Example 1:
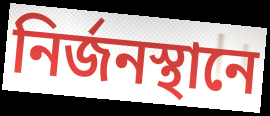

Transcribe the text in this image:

নির্জনস্থানে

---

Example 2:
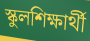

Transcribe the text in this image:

স্কুলশিক্ষার্থী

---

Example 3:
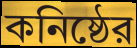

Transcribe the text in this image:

কনিষ্ঠের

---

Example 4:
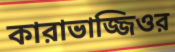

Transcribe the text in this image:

কারাভাজ্জিওর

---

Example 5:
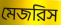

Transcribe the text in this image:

মেজরিস